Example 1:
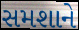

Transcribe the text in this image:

સમશાને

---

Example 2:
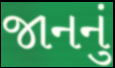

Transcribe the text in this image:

જાનનું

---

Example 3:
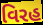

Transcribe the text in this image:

વિરહ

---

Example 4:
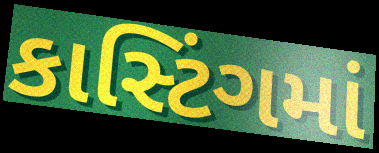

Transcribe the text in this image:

કાસ્ટિંગમાં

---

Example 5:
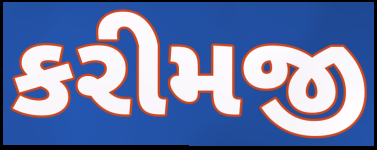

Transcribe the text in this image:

કરીમજી